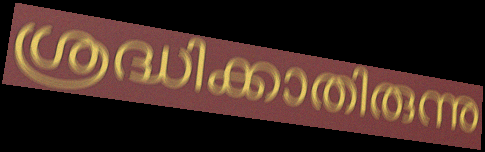
ശ്രദ്ധിക്കാതിരുന്നു